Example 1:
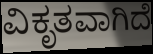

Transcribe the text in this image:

ವಿಕೃತವಾಗಿದೆ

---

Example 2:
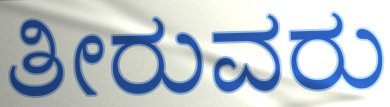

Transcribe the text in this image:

ತೀರುವರು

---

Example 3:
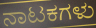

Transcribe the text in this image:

ನಾಟಕಗಳು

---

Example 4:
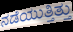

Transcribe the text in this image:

ನಡೆಯುತ್ತಿತ್ತು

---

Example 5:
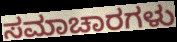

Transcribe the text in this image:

ಸಮಾಚಾರಗಳು